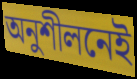
অনুশীলনেই